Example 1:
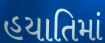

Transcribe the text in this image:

હયાતિમાં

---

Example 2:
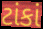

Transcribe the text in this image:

ટાંકાં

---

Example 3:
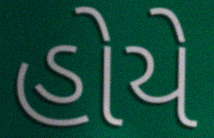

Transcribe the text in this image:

હોયે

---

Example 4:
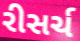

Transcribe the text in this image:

રીસર્ચ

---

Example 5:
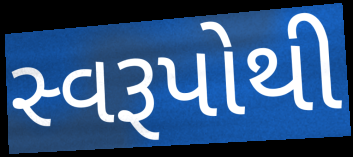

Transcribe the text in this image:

સ્વરૂપોથી